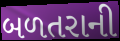
બળતરાની